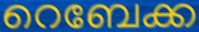
റെബേക്ക